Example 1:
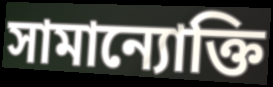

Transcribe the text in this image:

সামান্যোক্তি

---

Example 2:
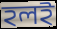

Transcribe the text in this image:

হলই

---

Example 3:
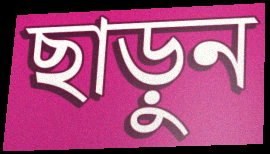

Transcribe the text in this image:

ছাড়ুন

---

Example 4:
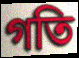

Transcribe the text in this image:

গতি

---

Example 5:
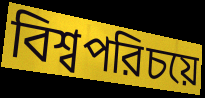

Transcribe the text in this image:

বিশ্বপরিচয়ে